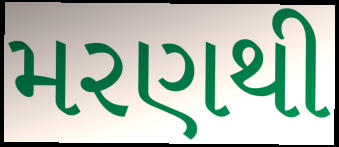
મરણથી